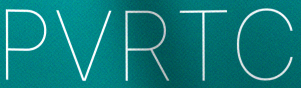
PVRTC